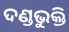
ଦଣ୍ଡଭୁକ୍ତି